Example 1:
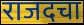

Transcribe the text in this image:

राजदचा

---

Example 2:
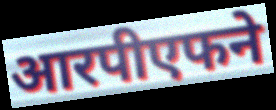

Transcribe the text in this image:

आरपीएफने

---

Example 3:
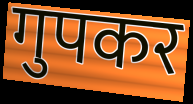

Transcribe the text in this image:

गुपकर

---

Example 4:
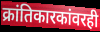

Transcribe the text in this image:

क्रांतिकारकांवरही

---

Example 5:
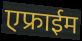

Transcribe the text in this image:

एफ्राईम